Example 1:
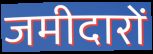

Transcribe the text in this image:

जमीदारों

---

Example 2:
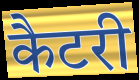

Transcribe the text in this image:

कैटरी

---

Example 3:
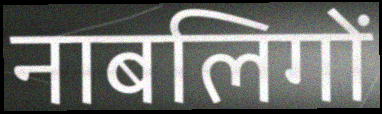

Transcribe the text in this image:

नाबलिगों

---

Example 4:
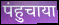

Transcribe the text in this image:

पंहुचाया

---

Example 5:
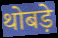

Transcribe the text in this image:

थोबड़े